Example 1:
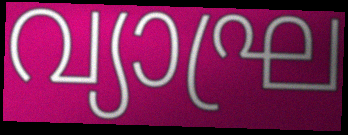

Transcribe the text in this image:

വ്യാഘ്ര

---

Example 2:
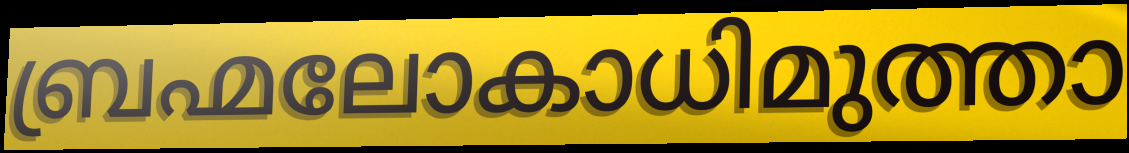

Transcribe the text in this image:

ബ്രഹ്മലോകാധിമുത്താ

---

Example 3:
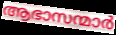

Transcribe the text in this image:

ആഭാസന്മാർ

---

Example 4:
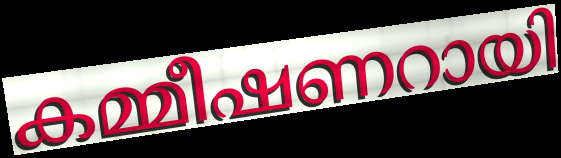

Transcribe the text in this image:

കമ്മീഷണറായി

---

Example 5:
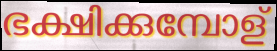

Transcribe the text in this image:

ഭക്ഷിക്കുമ്പോള്